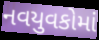
નવયુવકોમાં